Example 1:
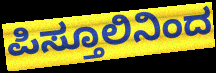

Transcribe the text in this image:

ಪಿಸ್ತೂಲಿನಿಂದ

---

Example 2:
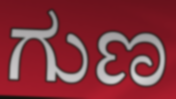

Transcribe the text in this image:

ಗುಣ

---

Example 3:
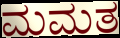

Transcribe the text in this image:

ಮಮತ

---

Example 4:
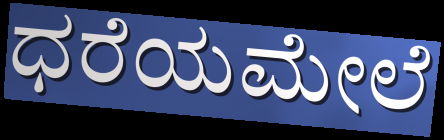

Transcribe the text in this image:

ಧರೆಯಮೇಲೆ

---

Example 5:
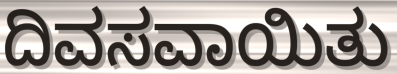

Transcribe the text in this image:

ದಿವಸವಾಯಿತು